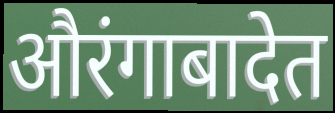
औरंगाबादेत